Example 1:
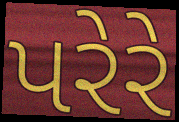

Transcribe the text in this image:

પરેરે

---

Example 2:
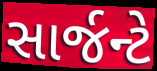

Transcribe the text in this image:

સાર્જન્ટે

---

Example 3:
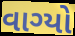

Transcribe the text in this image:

વાગ્યો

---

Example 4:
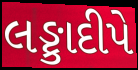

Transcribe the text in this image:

લઙ્કાદીપે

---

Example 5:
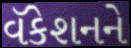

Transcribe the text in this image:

વૅકેશનને